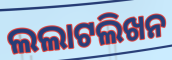
ଲଲାଟଲିଖନ